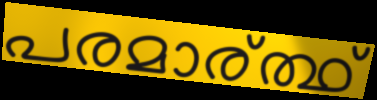
പരമാര്ത്ഥ്